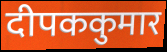
दीपककुमार